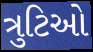
ત્રુટિઓ